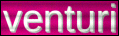
venturi